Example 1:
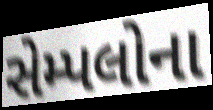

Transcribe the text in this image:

સેમ્પલોના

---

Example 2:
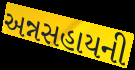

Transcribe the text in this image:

અન્નસહાયની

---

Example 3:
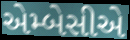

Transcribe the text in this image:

એમ્બેસીએ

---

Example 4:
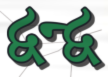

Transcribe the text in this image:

દ્વન્દ્વ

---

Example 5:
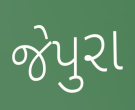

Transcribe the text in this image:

જેપુરા